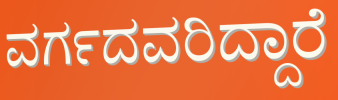
ವರ್ಗದವರಿದ್ದಾರೆ